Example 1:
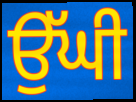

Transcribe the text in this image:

ਉੱਘੀ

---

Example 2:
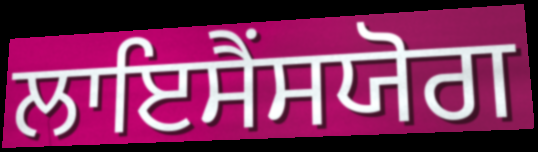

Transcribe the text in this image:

ਲਾਇਸੈਂਸਯੋਗ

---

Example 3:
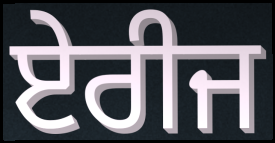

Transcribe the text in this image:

ਏਰੀਜ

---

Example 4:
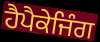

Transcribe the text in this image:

ਹੈਪੈਕੇਜਿੰਗ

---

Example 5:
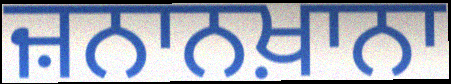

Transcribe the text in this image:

ਜ਼ਨਾਨਖ਼ਾਨਾ